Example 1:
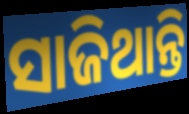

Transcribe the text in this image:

ସାଜିଥାନ୍ତି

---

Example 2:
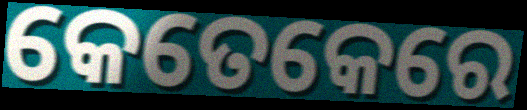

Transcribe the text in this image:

କେତେକେରେ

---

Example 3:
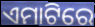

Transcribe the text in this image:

ଏମାଟିରେ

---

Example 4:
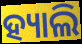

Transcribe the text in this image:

ହ୍ୟାଲି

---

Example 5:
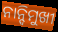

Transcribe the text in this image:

ନାନ୍ଦିମୁଖୀ